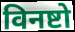
विनष्टो